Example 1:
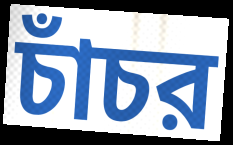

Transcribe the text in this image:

চাঁচর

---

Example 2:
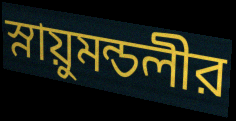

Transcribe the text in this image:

স্নায়ুমন্ডলীর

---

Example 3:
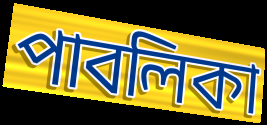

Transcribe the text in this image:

পাবলিকা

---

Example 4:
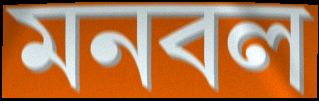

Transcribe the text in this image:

মনবল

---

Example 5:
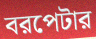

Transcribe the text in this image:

বরপেটার